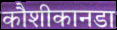
कौशीकानडा